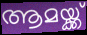
ആമയ്ക്ക്